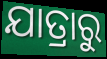
ଯାତ୍ରାରୁ